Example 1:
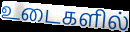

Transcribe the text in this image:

உடைகளில்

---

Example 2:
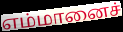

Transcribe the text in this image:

எம்மானைச்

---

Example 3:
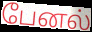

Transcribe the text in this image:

பேனல்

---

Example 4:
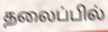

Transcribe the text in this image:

தலைப்பில்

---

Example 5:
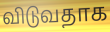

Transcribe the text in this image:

விடுவதாக